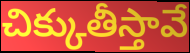
చిక్కుతీస్తావే